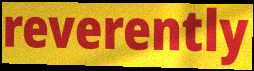
reverently